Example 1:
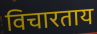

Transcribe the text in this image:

विचारताय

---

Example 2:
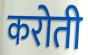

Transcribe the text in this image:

करोती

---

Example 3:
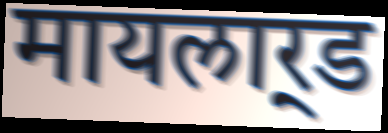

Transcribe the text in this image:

मायलार्ड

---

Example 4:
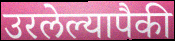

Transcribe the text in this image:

उरलेल्यापैकी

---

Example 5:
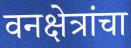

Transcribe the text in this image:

वनक्षेत्रांचा